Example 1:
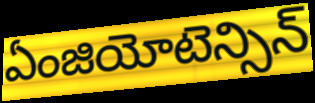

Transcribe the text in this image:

ఏంజియోటెన్సిన్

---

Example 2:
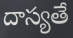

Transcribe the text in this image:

దాస్యతే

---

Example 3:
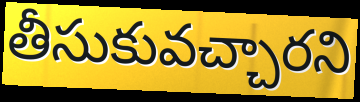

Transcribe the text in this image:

తీసుకువచ్చారని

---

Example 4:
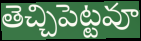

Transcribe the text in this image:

తెచ్చిపెట్టవూ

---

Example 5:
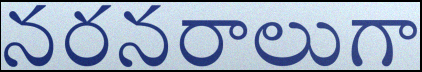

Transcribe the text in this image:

నరనరాలుగా